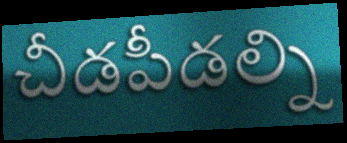
చీడపీడల్ని